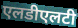
एलडीएलटी